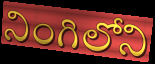
నింగిలోని